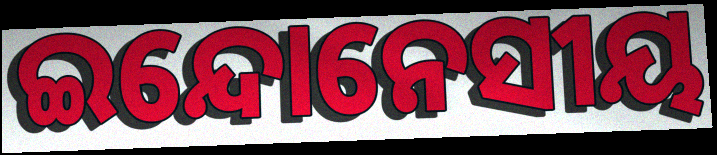
ଇନ୍ଦୋନେସୀୟ